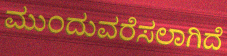
ಮುಂದುವರೆಸಲಾಗಿದೆ